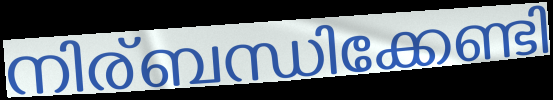
നിര്ബന്ധിക്കേണ്ടി